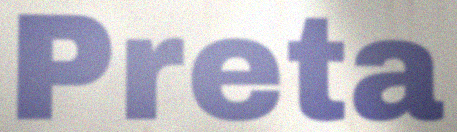
Preta